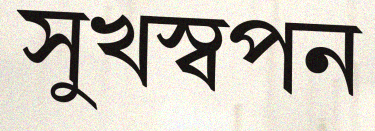
সুখস্বপন